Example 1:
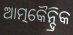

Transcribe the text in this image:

ଆତ୍ମକୈନ୍ଦ୍ରିକ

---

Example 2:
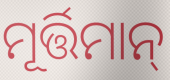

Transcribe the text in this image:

ମୂର୍ତ୍ତିମାନ୍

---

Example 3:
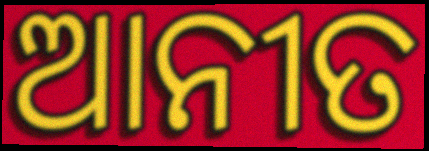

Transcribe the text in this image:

ଆନୀତ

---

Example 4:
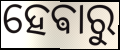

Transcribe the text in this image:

ହେଵାରୁ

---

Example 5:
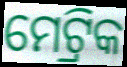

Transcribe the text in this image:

ମେଟ୍ରିକ